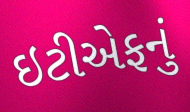
ઇટીએફનું